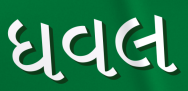
ધવલ